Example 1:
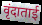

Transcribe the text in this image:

वृंदाताई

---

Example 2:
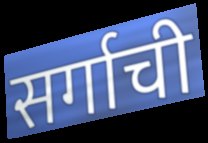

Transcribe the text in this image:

सर्गाची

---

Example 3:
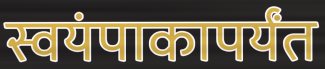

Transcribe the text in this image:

स्वयंपाकापर्यंत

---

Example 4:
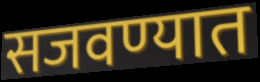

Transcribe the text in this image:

सजवण्यात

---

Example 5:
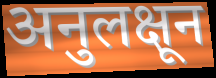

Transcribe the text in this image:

अनुलक्षून